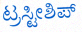
ಟ್ರಸ್ಟೀಶಿಪ್